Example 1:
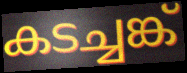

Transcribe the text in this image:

കടച്ചങ്ക്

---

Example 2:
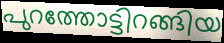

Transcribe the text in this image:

പുറത്തോട്ടിറങ്ങിയ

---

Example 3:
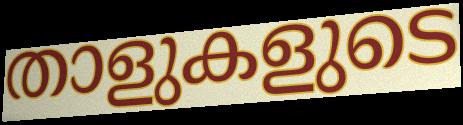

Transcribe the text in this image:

താളുകളുടെ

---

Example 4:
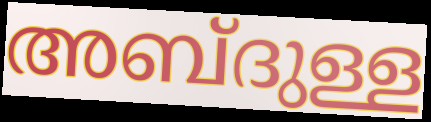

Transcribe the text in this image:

അബ്ദുള്ള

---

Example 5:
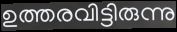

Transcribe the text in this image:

ഉത്തരവിട്ടിരുന്നു